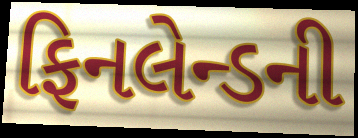
ફિનલેન્ડની